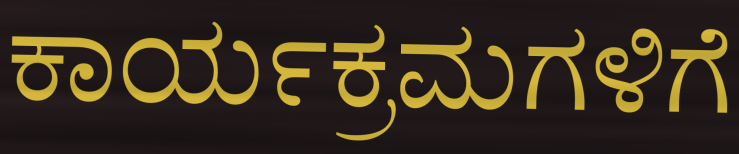
ಕಾರ್ಯಕ್ರಮಗಳಿಗೆ